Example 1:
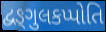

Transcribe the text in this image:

દ્વઙ્ગુલકપ્પોતિ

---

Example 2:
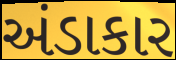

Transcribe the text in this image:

અંડાકાર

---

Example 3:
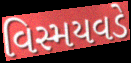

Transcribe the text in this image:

વિસ્મયવડે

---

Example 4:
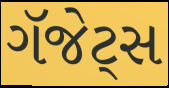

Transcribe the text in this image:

ગૅજેટ્સ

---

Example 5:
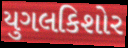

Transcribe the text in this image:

યુગલકિશોર